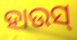
ହାଉସ୍